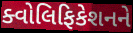
ક્વોલિફિકેશનને